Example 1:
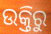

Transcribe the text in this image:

ଉକ୍ତିରୁ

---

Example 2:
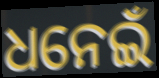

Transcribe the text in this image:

ଧନେଇଁ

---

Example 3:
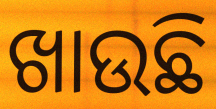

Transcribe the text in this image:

ଖାଉଛି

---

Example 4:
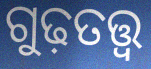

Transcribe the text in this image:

ଗୁଢ଼ତତ୍ତ୍ୱ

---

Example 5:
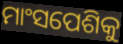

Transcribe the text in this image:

ମାଂସପେଶିକୁ